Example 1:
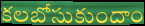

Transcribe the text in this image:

కలబోసుకుందాం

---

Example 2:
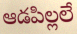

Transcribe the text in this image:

ఆడపిల్లలే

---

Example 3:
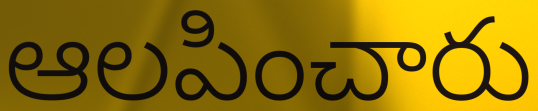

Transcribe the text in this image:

ఆలపించారు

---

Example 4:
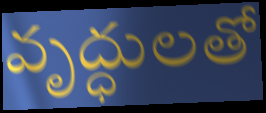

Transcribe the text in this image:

వృద్ధులతో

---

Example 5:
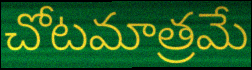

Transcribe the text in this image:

చోటమాత్రమే